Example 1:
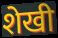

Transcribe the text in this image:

शेखी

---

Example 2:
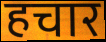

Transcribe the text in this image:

हचार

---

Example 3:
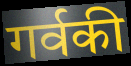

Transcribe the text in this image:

गर्वकी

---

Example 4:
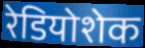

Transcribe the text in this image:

रेडियोशेक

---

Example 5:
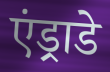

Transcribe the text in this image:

एंड्राडे